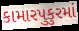
કામારપુકુરમાં